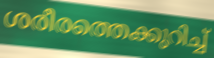
ശരീരത്തെക്കുറിച്ച്